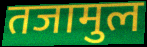
तजामुल